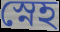
স্নেহ